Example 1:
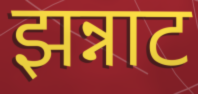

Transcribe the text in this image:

झन्नाट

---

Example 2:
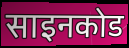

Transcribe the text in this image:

साइनकोड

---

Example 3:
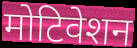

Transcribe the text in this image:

मोटिवेशन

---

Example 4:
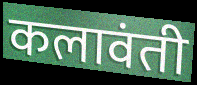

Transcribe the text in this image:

कलावंती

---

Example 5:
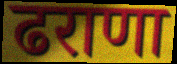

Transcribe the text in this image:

ढराणा